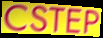
CSTEP